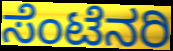
ಸೆಂಟೆನರಿ